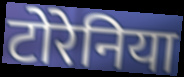
टोरेनिया